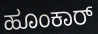
ಹೂಂಕಾರ್